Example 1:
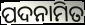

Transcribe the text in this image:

ପଦନାମିତ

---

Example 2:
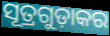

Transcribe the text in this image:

ସୂତ୍ରଗୁଡ଼ାକର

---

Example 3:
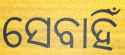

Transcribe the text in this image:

ସେବାହିଁ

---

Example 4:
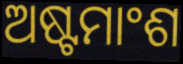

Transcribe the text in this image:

ଅଷ୍ଟମାଂଶ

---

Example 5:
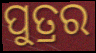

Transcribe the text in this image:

ପୁତ୍ରର